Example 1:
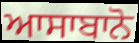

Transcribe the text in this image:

ਆਸਾਬਾਨੋ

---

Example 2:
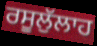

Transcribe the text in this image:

ਰਸੂਲੁੱਲਾਹ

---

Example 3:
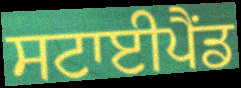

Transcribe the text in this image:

ਸਟਾਈਪੈਂਡ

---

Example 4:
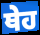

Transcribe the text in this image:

ਥੇਹ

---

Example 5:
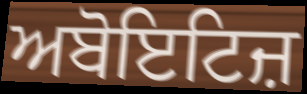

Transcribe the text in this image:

ਅਬੋਇਟਿਜ਼